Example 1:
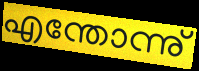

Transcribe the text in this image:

എന്തോന്നു്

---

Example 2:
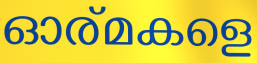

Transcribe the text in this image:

ഓര്മകളെ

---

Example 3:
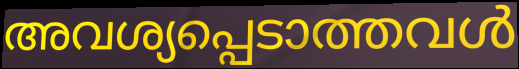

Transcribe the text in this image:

അവശ്യപ്പെടാത്തവൾ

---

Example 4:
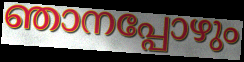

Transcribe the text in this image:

ഞാനപ്പോഴും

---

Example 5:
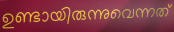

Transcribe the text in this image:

ഉണ്ടായിരുന്നുവെന്നത്